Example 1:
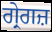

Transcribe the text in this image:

ਗ੍ਰੇਗਜ਼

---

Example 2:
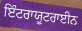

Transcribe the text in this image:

ਇੰਟਰਾਯੂਟਰਾਈਨ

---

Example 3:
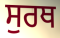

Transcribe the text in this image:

ਸੁਰਥ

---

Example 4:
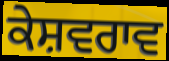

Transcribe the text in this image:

ਕੇਸ਼ਵਰਾਵ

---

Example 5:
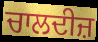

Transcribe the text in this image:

ਚਾਲਦੀਜ਼